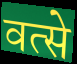
वत्से